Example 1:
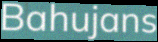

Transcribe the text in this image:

Bahujans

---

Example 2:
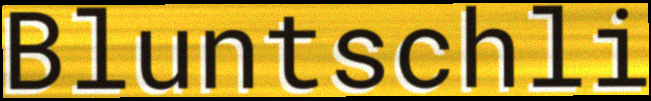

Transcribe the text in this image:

Bluntschli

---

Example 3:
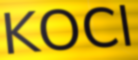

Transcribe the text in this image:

KOCl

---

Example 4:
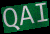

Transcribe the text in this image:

QAI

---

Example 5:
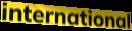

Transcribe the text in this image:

international